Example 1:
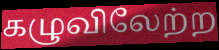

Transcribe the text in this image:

கழுவிலேற்ற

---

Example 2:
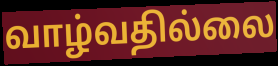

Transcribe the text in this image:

வாழ்வதில்லை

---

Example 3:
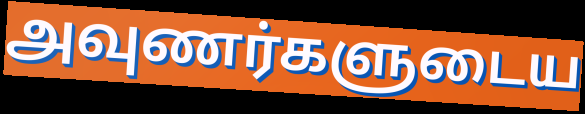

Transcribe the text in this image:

அவுணர்களுடைய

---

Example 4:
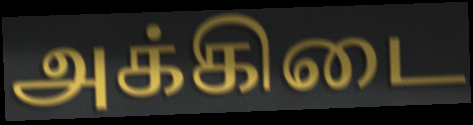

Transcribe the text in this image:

அக்கிடை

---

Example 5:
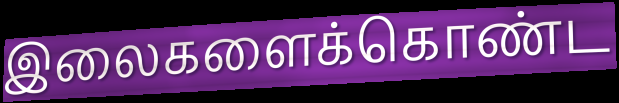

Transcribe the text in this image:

இலைகளைக்கொண்ட